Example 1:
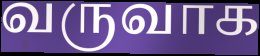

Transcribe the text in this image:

வருவாக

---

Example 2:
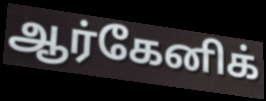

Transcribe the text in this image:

ஆர்கேனிக்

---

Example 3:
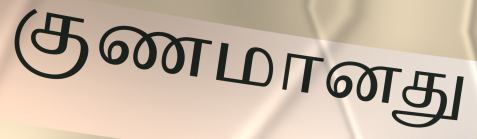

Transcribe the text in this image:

குணமானது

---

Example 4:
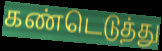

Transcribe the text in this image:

கண்டெடுத்து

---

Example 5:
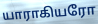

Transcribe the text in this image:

யாராகியரோ